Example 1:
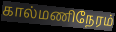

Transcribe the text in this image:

கால்மணிநேரம்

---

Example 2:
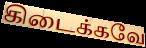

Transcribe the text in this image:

கிடைக்கவே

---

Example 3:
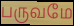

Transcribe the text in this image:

பருவமே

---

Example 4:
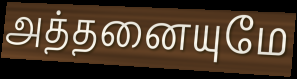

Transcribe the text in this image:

அத்தனையுமே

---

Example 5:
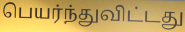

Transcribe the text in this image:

பெயர்ந்துவிட்டது